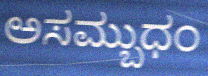
ಅಸಮ್ಬುಧಂ